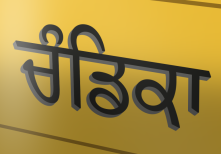
ਚੰਡਿਕਾ